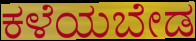
ಕಳೆಯಬೇಡ